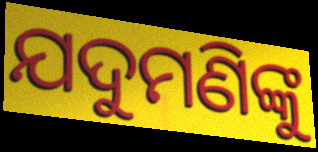
ଯଦୁମଣିଙ୍କୁ